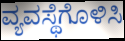
ವ್ಯವಸ್ಥೆಗೊಳಿಸಿ